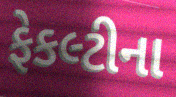
ફેકલ્ટીના